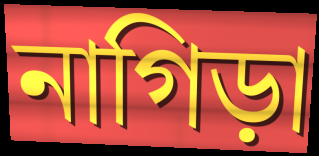
নাগিড়া